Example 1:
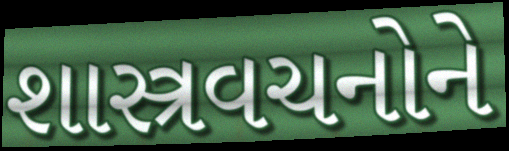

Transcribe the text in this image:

શાસ્ત્રવચનોને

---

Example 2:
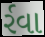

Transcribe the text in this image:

ર્રવા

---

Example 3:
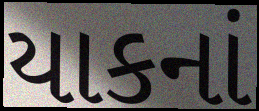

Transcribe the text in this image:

યાકનાં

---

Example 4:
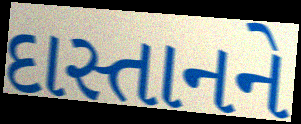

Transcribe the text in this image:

દાસ્તાનને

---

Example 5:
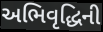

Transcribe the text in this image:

અભિવૃદ્ધિની